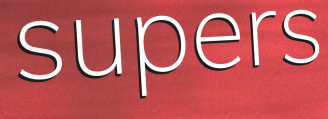
supers